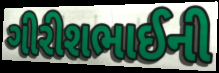
ગીરીશભાઈની